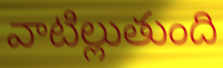
వాటిల్లుతుంది